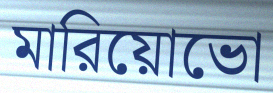
মারিয়োভো